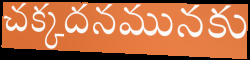
చక్కదనమునకు